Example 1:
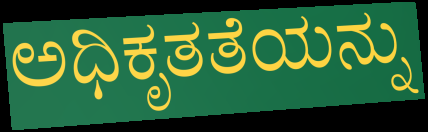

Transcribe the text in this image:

ಅಧಿಕೃತತೆಯನ್ನು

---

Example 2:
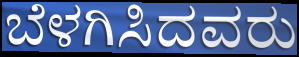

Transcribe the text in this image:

ಬೆಳಗಿಸಿದವರು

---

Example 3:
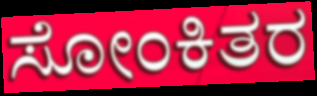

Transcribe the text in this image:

ಸೋಂಕಿತರ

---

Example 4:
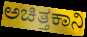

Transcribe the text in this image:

ಅಚಿತ್ತಕಾನಿ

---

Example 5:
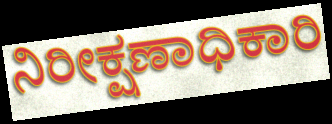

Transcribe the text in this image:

ನಿರೀಕ್ಷಣಾಧಿಕಾರಿ